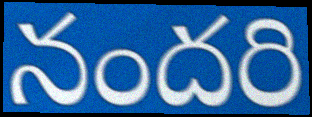
నందరి